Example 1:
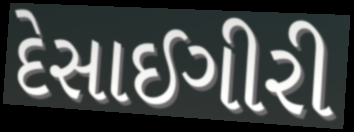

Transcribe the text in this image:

દેસાઈગીરી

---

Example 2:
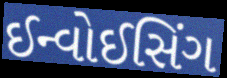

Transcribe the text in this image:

ઈન્વોઈસિંગ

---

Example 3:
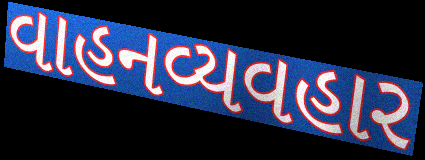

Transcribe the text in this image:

વાહનવ્યવહાર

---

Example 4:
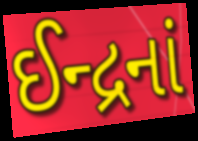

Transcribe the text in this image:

ઈન્દ્રનાં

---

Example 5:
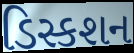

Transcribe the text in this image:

ડિસ્કશન